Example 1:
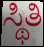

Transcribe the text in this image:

ಸ್ಥಿತಿ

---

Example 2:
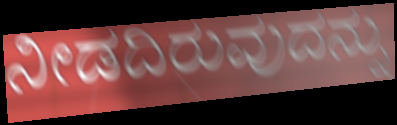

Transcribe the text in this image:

ನೀಡದಿರುವುದನ್ನು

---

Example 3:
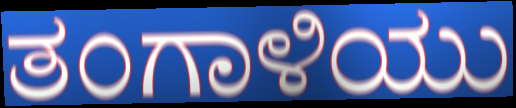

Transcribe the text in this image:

ತಂಗಾಳಿಯು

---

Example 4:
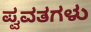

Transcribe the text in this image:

ಪ್ವವತಗಳು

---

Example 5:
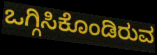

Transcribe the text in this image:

ಒಗ್ಗಿಸಿಕೊಂಡಿರುವ